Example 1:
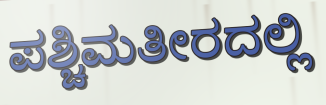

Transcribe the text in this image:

ಪಶ್ಚಿಮತೀರದಲ್ಲಿ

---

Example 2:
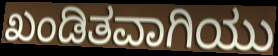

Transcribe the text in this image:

ಖಂಡಿತವಾಗಿಯು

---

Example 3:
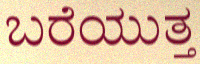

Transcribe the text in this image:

ಬರೆಯುತ್ತ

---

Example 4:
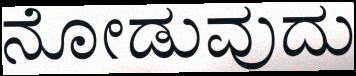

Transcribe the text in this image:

ನೋಡುವುದು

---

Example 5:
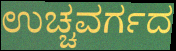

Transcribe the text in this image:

ಉಚ್ಚವರ್ಗದ